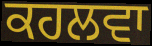
ਕਹਲਵਾ